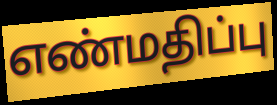
எண்மதிப்பு